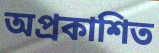
অপ্ৰকাশিত